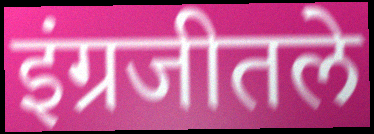
इंग्रजीतले